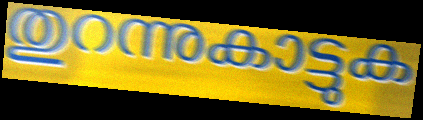
തുറന്നുകാട്ടുക